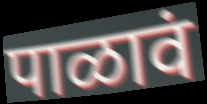
पाळावं